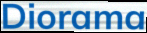
Diorama